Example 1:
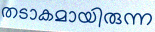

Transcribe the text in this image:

തടാകമായിരുന്ന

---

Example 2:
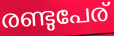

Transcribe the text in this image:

രണ്ടുപേര്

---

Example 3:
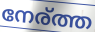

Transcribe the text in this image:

നേര്ത്ത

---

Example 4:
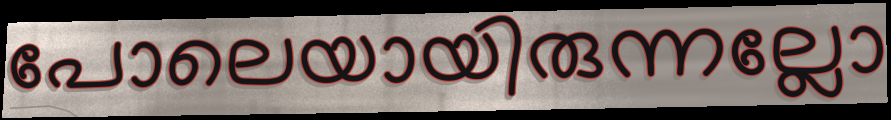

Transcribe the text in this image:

പോലെയായിരുന്നല്ലോ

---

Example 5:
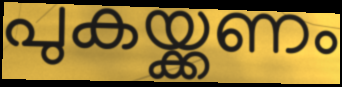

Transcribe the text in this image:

പുകയ്ക്കണം